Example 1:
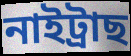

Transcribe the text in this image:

নাইট্ৰাছ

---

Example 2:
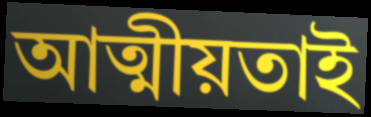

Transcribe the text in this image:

আত্মীয়তাই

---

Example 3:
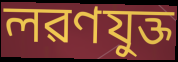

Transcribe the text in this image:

লৱণযুক্ত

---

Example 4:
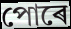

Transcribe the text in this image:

পোৰে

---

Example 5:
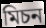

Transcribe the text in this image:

মিচন